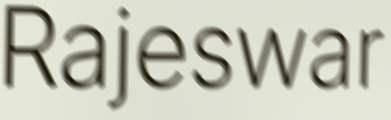
Rajeswar